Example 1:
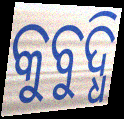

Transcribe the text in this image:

କୁବୁଦ୍ଧି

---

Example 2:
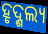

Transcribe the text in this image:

ହୃଦ୍ଶଲ୍ୟ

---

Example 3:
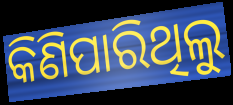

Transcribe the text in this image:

କିଣିପାରିଥିଲୁ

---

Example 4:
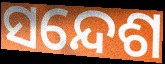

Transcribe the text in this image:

ସନ୍ଦେଶ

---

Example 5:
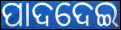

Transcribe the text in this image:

ପାଦଦେଇ